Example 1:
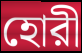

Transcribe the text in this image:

হোরী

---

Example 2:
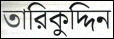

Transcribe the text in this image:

তারিকুদ্দিন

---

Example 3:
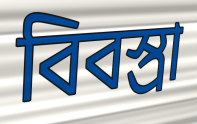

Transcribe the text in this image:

বিবস্ত্রা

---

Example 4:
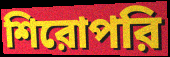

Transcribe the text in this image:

শিরোপরি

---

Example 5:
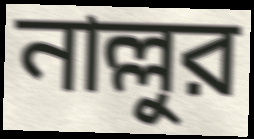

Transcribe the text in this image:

নাল্লুর